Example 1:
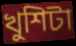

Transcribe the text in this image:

খুশিটা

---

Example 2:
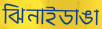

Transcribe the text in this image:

ঝিনাইডাঙা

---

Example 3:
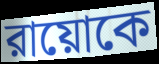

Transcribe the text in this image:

রায়োকে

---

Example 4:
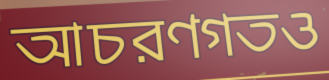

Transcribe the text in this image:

আচরণগতও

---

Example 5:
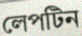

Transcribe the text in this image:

লেপটিন